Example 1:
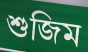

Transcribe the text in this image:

শুজিম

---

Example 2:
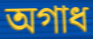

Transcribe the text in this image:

অগাধ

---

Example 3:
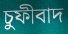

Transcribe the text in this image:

চুফীবাদ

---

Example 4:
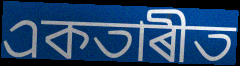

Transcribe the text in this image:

একতাৰীত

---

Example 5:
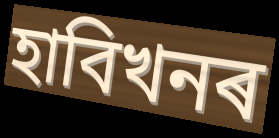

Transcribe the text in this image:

হাবিখনৰ